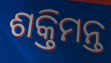
ଶକ୍ତିମନ୍ତ